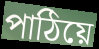
পাঠিয়ে